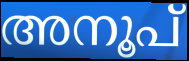
അനൂപ്